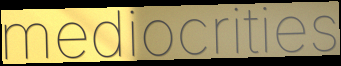
mediocrities